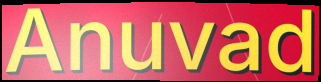
Anuvad